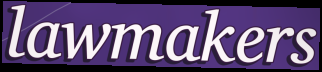
lawmakers